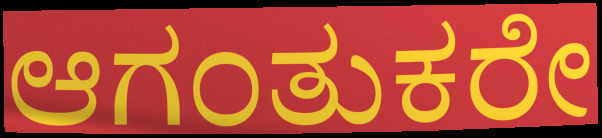
ಆಗಂತುಕರೇ